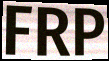
FRP